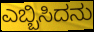
ಎಬ್ಬಿಸಿದನು